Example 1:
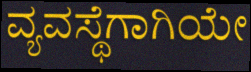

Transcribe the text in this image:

ವ್ಯವಸ್ಥೆಗಾಗಿಯೇ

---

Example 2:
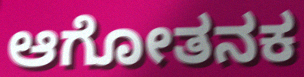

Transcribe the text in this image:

ಆಗೋತನಕ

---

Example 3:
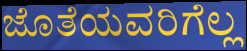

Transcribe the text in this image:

ಜೊತೆಯವರಿಗೆಲ್ಲ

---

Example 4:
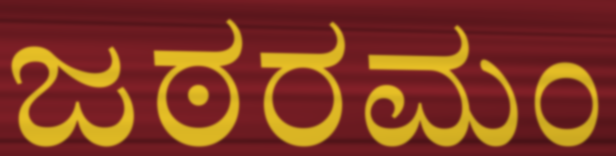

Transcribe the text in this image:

ಜಠರಮಂ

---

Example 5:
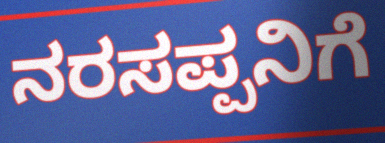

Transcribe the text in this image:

ನರಸಪ್ಪನಿಗೆ